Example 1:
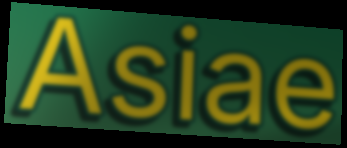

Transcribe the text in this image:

Asiae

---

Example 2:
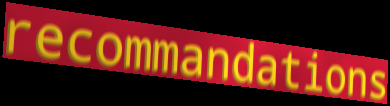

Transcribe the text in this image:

recommandations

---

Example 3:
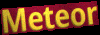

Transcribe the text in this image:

Meteor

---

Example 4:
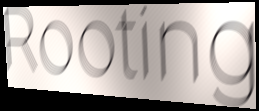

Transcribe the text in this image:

Rooting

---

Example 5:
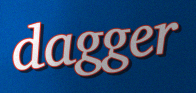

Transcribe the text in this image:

dagger